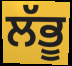
ਲੱਭੂ